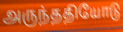
அருந்ததியோடு